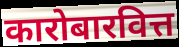
कारोबारवित्त